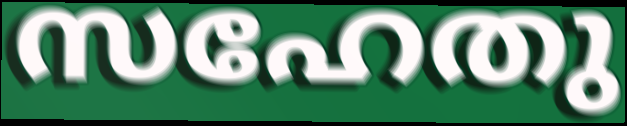
സഹേതു